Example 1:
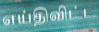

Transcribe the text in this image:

எய்திவிட்ட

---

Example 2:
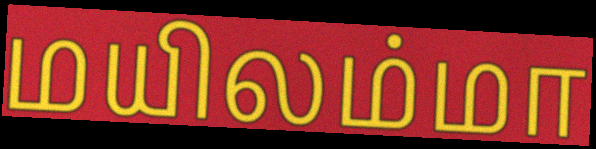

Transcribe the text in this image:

மயிலம்மா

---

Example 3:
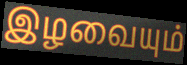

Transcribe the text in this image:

இழவையும்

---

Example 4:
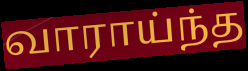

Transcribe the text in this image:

வாராய்ந்த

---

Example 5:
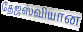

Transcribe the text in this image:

தேஜஸ்வியான